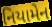
નિયામેન